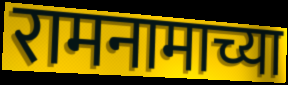
रामनामाच्या